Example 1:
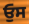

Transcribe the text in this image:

ਓੁਸ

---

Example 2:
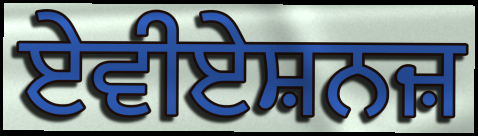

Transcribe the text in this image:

ਏਵੀਏਸ਼ਨਜ਼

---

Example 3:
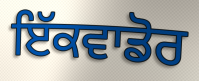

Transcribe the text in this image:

ਇੱਕਵਾਡੋਰ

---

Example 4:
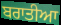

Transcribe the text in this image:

ਬਰਾਤੀਆ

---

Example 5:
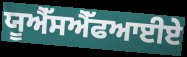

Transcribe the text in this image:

ਯੂਐੱਸਐੱਫਆਈਏ